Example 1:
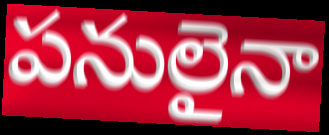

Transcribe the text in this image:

పనులైనా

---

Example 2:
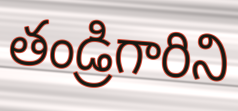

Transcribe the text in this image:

తండ్రిగారిని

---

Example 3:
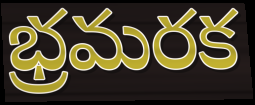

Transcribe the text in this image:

భ్రమరక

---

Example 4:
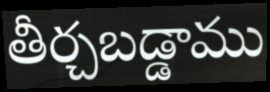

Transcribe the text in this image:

తీర్చబడ్డాము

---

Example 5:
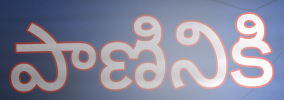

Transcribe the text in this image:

పాణినికి